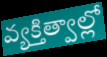
వ్యక్తిత్వాల్లో